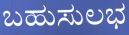
ಬಹುಸುಲಭ